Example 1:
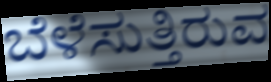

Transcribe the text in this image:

ಬೆಳೆಸುತ್ತಿರುವ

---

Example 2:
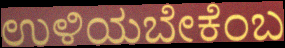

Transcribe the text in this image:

ಉಳಿಯಬೇಕೆಂಬ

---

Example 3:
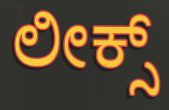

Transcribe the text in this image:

ಲೀಕ್ಸ್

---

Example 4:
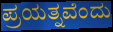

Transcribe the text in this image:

ಪ್ರಯತ್ನವೆಂದು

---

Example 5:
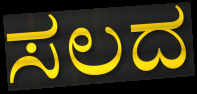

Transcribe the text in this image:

ಸಲದ